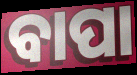
ବାପା